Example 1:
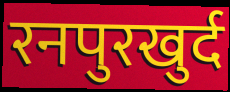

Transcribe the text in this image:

रनपुरखुर्द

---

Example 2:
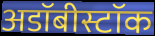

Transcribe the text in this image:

अडॉबीस्टॉक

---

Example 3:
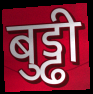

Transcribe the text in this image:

बुड्ढी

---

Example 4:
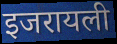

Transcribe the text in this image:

इजरायली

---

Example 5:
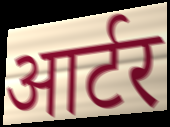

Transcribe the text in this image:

आर्टर